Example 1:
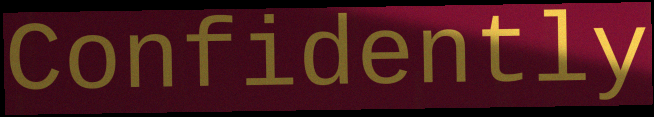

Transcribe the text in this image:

Confidently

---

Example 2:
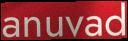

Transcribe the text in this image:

anuvad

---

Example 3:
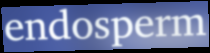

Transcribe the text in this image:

endosperm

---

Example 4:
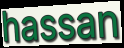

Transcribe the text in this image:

hassan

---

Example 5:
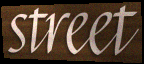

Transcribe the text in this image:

street